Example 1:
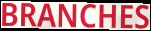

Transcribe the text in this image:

BRANCHES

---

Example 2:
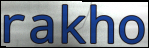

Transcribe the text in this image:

rakho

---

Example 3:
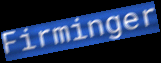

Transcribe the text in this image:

Firminger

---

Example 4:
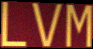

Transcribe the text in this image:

LVM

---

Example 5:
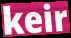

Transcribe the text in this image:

keir